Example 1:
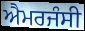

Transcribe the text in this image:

ਐਮਰਜੰਸੀ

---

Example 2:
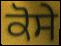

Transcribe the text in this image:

ਕੋਸੇ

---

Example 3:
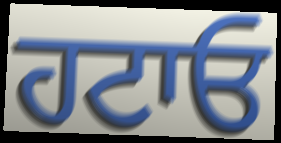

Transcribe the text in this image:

ਹਟਾਓ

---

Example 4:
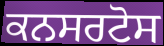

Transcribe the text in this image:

ਕਨਸਰਟੋਸ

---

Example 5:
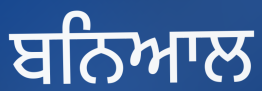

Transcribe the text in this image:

ਬਨਿਆਲ